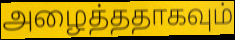
அழைத்ததாகவும்